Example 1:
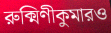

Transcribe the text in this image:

রুক্মিণীকুমারও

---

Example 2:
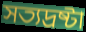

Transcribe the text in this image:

সত্যদ্রষ্টা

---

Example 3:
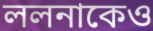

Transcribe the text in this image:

ললনাকেও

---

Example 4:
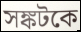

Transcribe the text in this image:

সঙ্কটকে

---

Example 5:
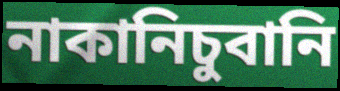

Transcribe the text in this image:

নাকানিচুবানি